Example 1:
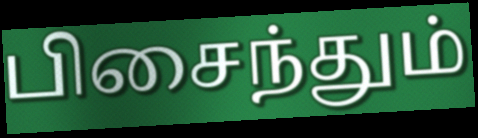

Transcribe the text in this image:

பிசைந்தும்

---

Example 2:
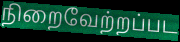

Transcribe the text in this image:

நிறைவேற்றப்பட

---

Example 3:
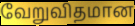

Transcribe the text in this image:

வேறுவிதமான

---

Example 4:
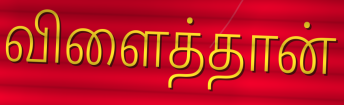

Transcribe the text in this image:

விளைத்தான்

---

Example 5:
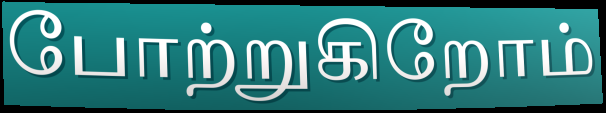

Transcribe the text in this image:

போற்றுகிறோம்